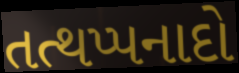
તત્થપ્પનાદો